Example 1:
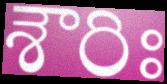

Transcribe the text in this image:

శౌరిః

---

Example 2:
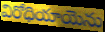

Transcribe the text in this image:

విరోధియాయెను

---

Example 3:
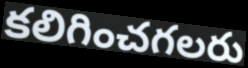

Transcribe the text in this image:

కలిగించగలరు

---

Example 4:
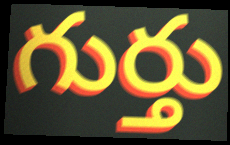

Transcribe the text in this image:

గుర్తు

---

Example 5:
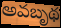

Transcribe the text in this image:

అవబృథ